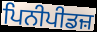
ਪਿਨੀਪੀਡਜ਼